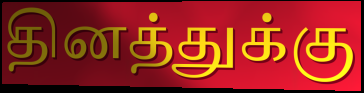
தினத்துக்கு